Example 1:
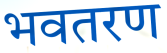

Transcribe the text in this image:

भवतरण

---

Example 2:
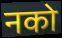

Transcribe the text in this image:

नको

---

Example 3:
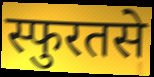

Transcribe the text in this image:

स्फुरतसे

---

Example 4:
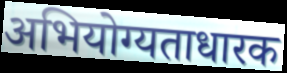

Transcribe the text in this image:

अभियोग्यताधारक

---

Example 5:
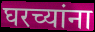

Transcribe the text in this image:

घरच्‍यांना